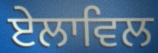
ਏਲਾਵਿਲ